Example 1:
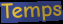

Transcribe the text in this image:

Temps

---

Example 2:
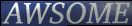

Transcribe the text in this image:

AWSOME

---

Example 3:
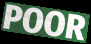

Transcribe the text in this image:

POOR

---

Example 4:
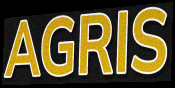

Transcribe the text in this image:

AGRIS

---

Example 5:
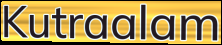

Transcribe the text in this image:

Kutraalam